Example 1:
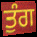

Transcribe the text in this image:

ਤੁੰਗ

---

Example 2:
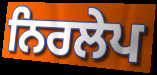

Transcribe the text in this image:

ਨਿਰਲੇਪ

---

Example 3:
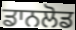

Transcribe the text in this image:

ਡਾਨਲੋਡ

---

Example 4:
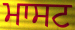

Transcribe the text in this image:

ਮਾਸਟ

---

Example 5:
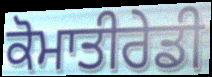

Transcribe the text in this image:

ਕੋਮਾਤੀਰੇਡੀ